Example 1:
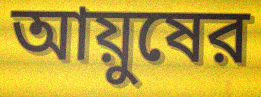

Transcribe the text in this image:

আয়ুষের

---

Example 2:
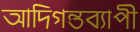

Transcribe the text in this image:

আদিগন্তব্যাপী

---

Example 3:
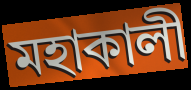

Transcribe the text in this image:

মহাকালী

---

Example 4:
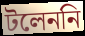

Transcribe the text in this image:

টলেননি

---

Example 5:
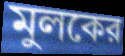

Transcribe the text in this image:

মুলকের